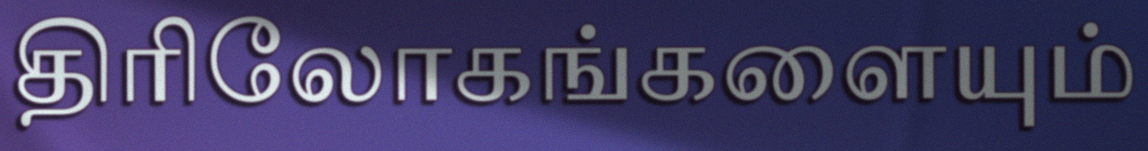
திரிலோகங்களையும்